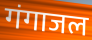
गंगाजल